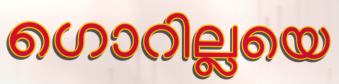
ഗൊറില്ലയെ